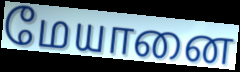
மேயானை